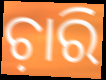
ଚ଼ାରି